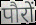
पौरों